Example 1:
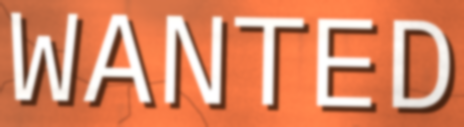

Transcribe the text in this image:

WANTED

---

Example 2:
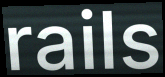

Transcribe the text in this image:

rails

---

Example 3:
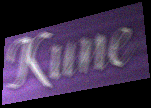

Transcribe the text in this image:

Kune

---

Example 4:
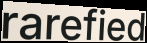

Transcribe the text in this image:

rarefied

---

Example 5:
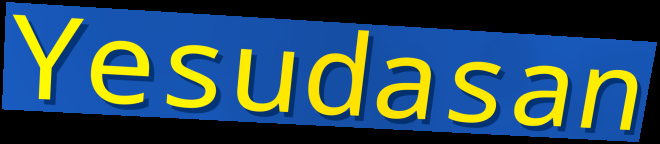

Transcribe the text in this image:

Yesudasan